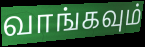
வாங்கவும்